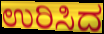
ಉರಿಸಿದ